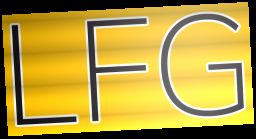
LFG